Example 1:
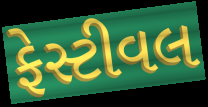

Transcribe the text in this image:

ફેસ્ટીવલ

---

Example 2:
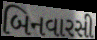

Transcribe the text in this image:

બિનવારસી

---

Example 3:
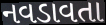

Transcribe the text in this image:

નવડાવતા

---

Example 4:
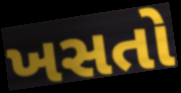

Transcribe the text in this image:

ખસતો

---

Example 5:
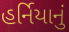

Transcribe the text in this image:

હર્નિયાનું